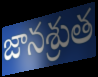
జానశ్రుత